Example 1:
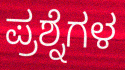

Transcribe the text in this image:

ಪ್ರಶ್ನೆಗಳ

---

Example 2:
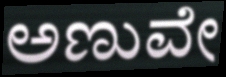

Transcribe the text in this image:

ಅಣುವೇ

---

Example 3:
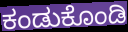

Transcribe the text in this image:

ಕಂಡುಕೊಂಡಿ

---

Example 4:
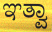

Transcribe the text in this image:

ಞತ್ವಾ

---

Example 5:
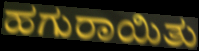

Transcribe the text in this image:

ಹಗುರಾಯಿತು